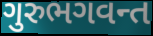
ગુરુભગવન્ત